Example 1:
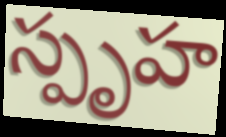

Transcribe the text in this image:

స్పృహ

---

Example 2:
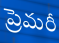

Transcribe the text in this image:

ప్రెమరీ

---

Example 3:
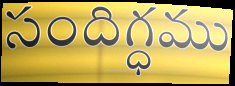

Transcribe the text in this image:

సందిగ్ధము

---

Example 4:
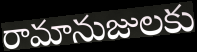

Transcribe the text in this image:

రామానుజులకు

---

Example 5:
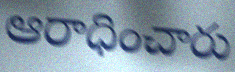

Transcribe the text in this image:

ఆరాధించారు